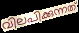
വിലപിക്കുന്നത്